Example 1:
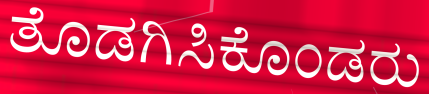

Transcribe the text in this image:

ತೊಡಗಿಸಿಕೊಂಡರು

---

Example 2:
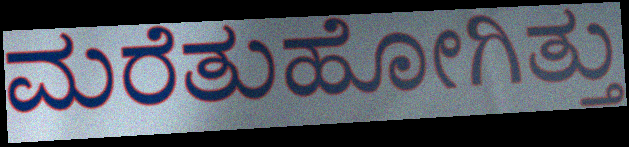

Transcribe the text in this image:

ಮರೆತುಹೋಗಿತ್ತು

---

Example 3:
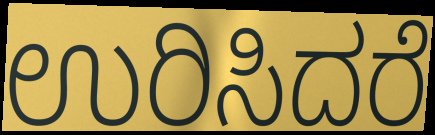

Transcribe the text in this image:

ಉರಿಸಿದರೆ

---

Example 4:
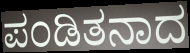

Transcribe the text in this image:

ಪಂಡಿತನಾದ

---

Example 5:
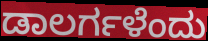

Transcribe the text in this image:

ಡಾಲರ್ಗಳೆಂದು